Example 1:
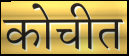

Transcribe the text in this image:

कोचीत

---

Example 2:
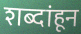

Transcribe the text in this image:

शब्दांहून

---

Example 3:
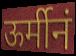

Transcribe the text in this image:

ऊर्मीनं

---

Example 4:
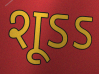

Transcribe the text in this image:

शूऽऽ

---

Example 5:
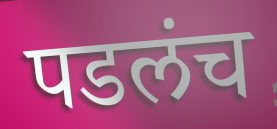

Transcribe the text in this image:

पडलंच